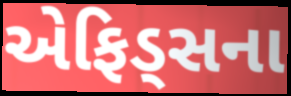
એફિડ્સના